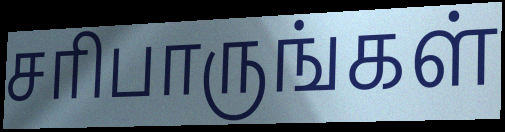
சரிபாருங்கள்